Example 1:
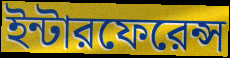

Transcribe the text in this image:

ইন্টারফেরেন্স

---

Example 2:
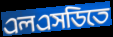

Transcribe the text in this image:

এলএসডিতে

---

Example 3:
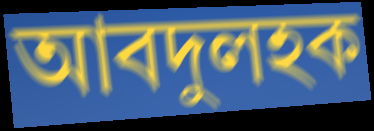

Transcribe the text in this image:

আবদুলহক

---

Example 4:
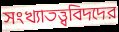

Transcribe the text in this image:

সংখ্যাতত্ত্ববিদদের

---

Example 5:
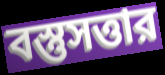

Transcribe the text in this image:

বস্তুসত্তার